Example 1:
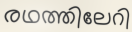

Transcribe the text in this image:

രഥത്തിലേറി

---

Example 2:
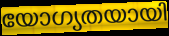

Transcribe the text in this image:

യോഗ്യതയായി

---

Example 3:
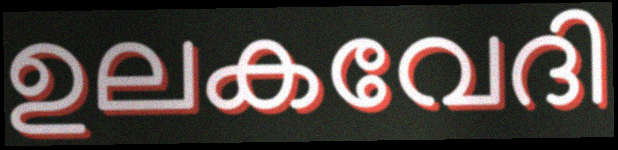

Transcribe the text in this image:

ഉലകവേദി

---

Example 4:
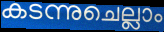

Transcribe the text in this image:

കടന്നുചെല്ലാം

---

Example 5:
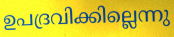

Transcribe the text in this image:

ഉപദ്രവിക്കില്ലെന്നു